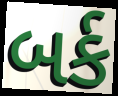
બર્ક